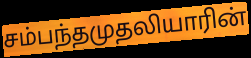
சம்பந்தமுதலியாரின்